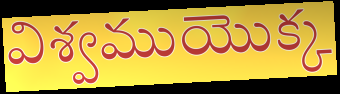
విశ్వముయొక్క